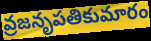
వ్రజనృపతికుమారం